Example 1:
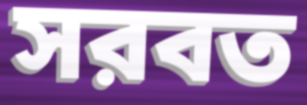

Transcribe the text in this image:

সরবত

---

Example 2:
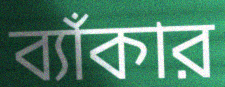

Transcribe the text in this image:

ব্যাঁকার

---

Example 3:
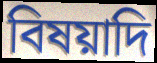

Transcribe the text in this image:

বিষয়াদি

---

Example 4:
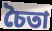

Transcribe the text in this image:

চৈতা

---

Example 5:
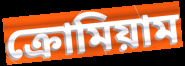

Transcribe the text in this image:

ক্রোমিয়াম